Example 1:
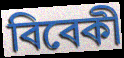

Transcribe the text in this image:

বিবেকী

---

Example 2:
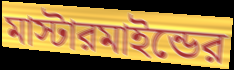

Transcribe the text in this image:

মাস্টারমাইন্ডের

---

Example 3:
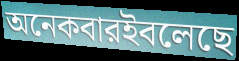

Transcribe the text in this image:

অনেকবারইবলেছে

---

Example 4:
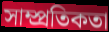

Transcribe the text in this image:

সাম্প্রতিকতা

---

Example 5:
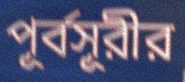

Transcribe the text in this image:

পূর্বসূরীর